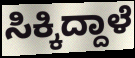
ಸಿಕ್ಕಿದ್ದಾಳೆ